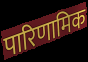
पारिणामिक